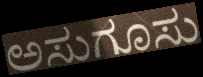
ಅಸುಗೂಸು